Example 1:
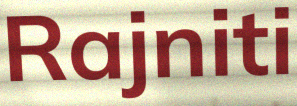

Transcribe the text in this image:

Rajniti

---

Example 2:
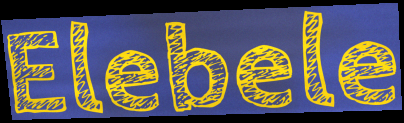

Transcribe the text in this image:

Elebele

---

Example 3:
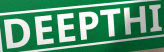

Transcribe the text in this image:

DEEPTHI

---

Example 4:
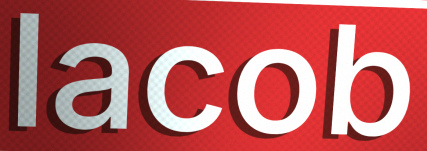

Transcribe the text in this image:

Iacob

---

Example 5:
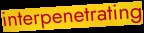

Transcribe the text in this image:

interpenetrating